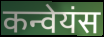
कन्वेयंस